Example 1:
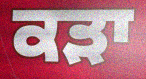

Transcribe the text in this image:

ਕੜਾ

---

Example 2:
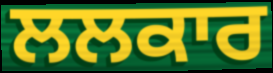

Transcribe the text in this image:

ਲਲਕਾਰ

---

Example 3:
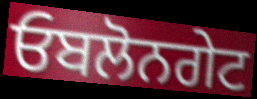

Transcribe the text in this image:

ਓਬਲੋਨਗੇਟ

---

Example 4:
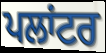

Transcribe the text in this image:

ਪਲਾਂਟਰ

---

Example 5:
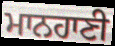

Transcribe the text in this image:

ਮਾਨਹਾਣੀ